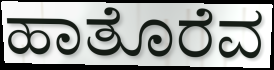
ಹಾತೊರೆವ